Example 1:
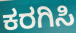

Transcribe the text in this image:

ಕರಗಿಸಿ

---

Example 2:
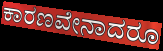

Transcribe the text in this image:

ಕಾರಣವೇನಾದರೂ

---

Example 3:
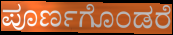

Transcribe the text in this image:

ಪೂರ್ಣಗೊಂಡರೆ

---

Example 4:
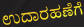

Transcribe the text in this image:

ಉದಾರಹಣೆಗೆ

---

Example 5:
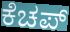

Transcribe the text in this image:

ಕೆಚಪ್